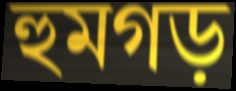
হুমগড়